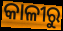
କାଳୀରୁ